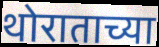
थोराताच्या